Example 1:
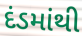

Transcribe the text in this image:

દંડમાંથી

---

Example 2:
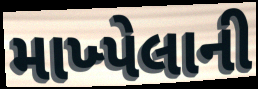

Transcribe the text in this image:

માખ્પેલાની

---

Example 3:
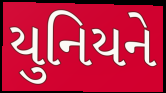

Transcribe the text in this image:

યુનિયને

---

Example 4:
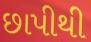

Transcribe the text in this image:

છાપીથી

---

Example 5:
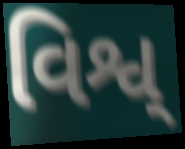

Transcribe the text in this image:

વિશ્વ્